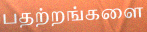
பதற்றங்களை